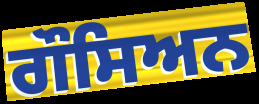
ਗੌਸਿਅਨ